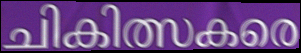
ചികിത്സകരെ